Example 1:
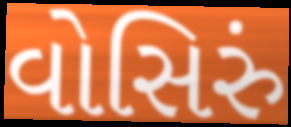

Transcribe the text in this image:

વોસિરું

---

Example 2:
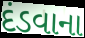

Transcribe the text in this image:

દંડવાના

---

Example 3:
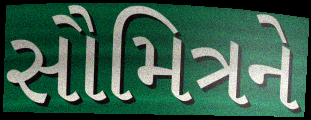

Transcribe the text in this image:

સૌમિત્રને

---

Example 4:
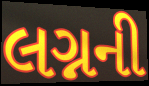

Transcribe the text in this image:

લગ્નની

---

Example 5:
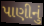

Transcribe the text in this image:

પાણીનું